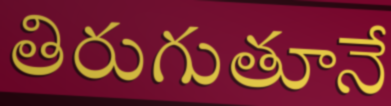
తిరుగుతూనే